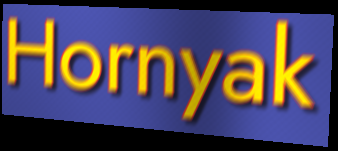
Hornyak